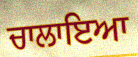
ਚਾਲਾਇਆ